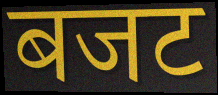
बजट